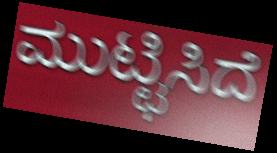
ಮುಟ್ಟಿಸಿದೆ